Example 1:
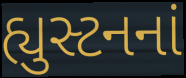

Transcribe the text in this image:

હ્યુસ્ટનનાં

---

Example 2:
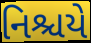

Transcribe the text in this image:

નિશ્ચયે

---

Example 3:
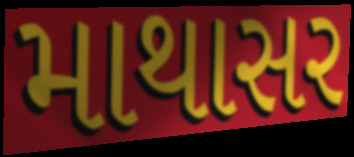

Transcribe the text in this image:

માથાસર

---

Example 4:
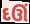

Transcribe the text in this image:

દઊં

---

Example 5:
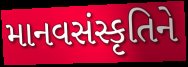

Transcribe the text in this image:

માનવસંસ્કૃતિને